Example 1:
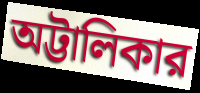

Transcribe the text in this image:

অট্টালিকার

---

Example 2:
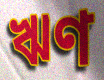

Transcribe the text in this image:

ঋণ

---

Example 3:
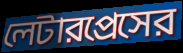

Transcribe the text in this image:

লেটারপ্রেসের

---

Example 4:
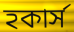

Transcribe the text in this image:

হকার্স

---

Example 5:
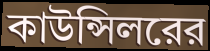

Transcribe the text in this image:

কাউন্সিলরের